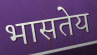
भासतेय